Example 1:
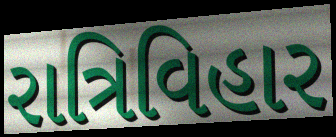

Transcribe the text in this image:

રાત્રિવિહાર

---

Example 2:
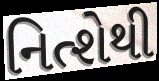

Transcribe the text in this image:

નિત્શેથી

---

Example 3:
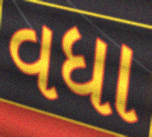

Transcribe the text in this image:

વધા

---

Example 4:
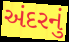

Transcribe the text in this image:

અંદરનું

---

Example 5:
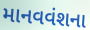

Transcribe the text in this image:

માનવવંશના